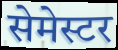
सेमेस्टर